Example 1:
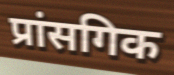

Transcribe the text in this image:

प्रांसगिक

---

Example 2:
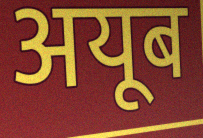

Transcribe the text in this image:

अयूब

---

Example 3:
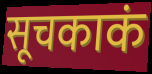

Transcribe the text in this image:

सूचकाकं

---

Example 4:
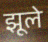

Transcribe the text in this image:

झूले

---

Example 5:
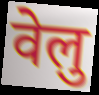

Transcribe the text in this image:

वेलु